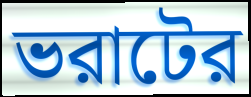
ভরাটের